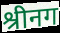
श्रीनग